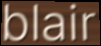
blair